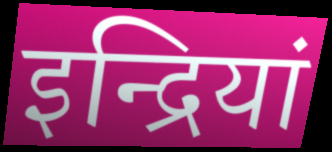
इन्द्रियां